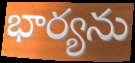
భార్యను